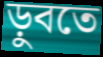
ড়ুবতে